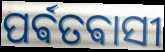
ପର୍ଵତଵାସୀ